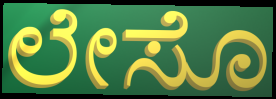
ಲೇಸೊ